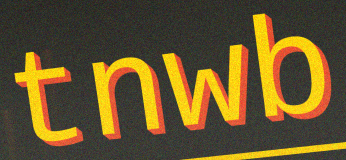
tnwb